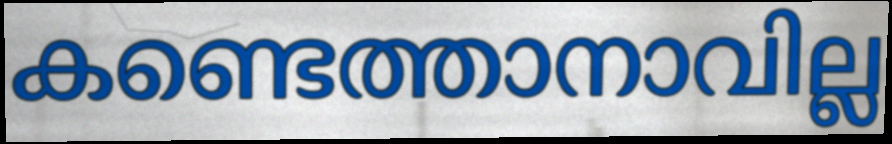
കണ്ടെത്താനാവില്ല